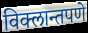
विक्लान्तपणे